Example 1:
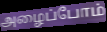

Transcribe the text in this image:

அழைப்போம்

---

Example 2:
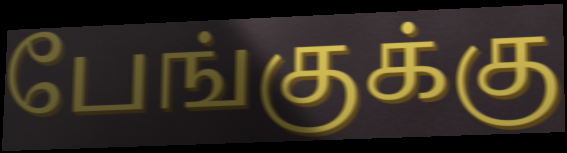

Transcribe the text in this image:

பேங்குக்கு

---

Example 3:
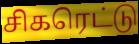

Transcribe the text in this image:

சிகரெட்டு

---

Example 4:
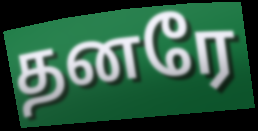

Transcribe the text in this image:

தனரே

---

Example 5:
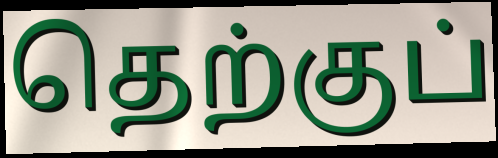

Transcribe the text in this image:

தெற்குப்